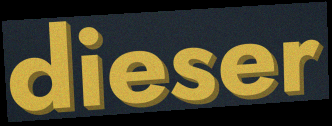
dieser